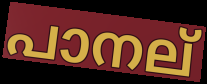
പാനല്